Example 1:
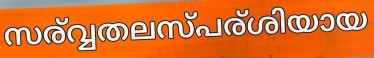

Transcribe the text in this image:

സര്വ്വതലസ്പര്ശിയായ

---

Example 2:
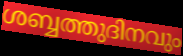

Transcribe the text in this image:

ശബ്ബത്തുദിനവും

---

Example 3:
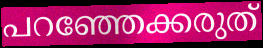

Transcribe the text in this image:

പറഞ്ഞേക്കരുത്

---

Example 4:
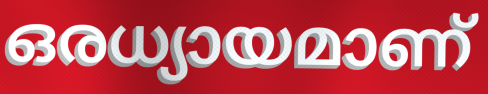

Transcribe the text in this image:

ഒരധ്യായമാണ്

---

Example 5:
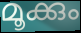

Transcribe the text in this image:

മൂക്കും